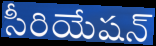
సీరియేషన్